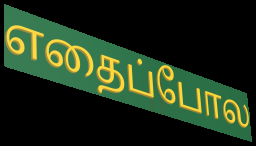
எதைப்போல